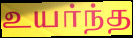
உயர்ந்த